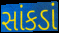
સાંકડાં